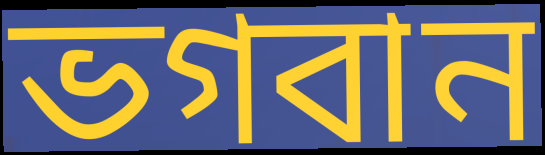
ভগবান